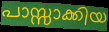
പാസ്സാക്കിയ